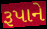
રૂપાને